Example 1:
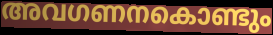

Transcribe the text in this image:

അവഗണനകൊണ്ടും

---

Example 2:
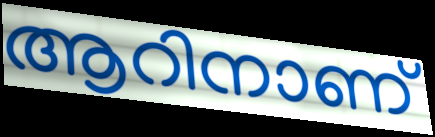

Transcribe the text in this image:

ആറിനാണ്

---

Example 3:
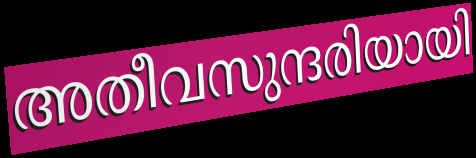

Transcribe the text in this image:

അതീവസുന്ദരിയായി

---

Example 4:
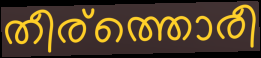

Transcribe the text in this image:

തീര്ത്തൊരീ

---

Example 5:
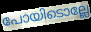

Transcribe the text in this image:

പോയിടൊല്ലേ